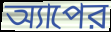
অ্যাপের